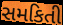
સમકિતી